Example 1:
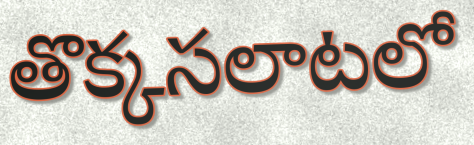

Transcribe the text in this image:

తొక్కసలాటలో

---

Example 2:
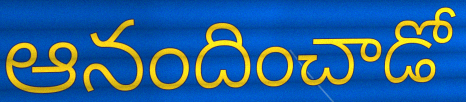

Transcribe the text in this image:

ఆనందించాడో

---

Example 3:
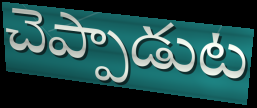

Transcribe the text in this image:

చెప్పాడుట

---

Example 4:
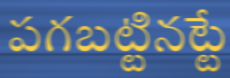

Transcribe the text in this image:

పగబట్టినట్టే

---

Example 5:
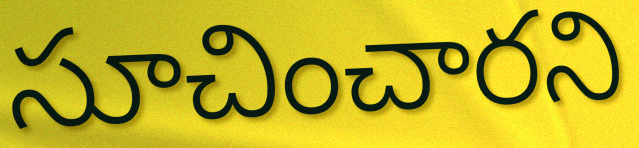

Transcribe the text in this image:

సూచించారని